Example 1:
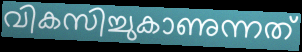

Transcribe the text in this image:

വികസിച്ചുകാണുന്നത്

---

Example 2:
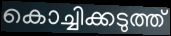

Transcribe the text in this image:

കൊച്ചിക്കടുത്ത്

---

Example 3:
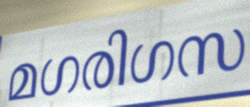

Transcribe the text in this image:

മഗരിഗസ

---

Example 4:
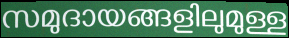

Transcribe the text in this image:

സമുദായങ്ങളിലുമുള്ള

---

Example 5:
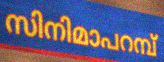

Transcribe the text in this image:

സിനിമാപറമ്പ്